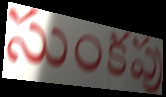
సుంకపు